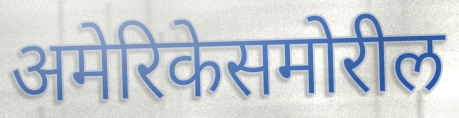
अमेरिकेसमोरील